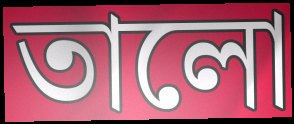
তালো